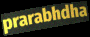
prarabhdha